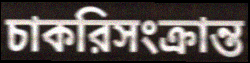
চাকরিসংক্রান্ত